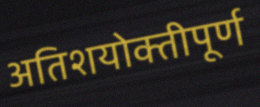
अतिशयोक्‍तीपूर्ण